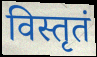
विस्तृतं